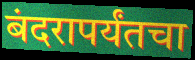
बंदरापर्यंतचा